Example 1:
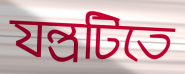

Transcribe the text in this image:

যন্ত্রটিতে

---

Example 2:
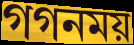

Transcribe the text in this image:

গগনময়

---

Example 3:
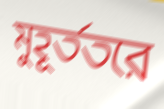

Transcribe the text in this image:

মুহূর্ততরে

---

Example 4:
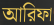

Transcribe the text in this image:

আরিফা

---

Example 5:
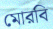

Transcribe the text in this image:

মোরবি